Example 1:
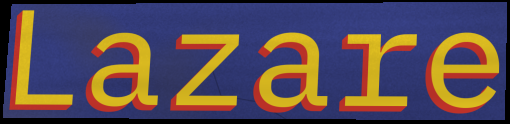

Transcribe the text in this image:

Lazare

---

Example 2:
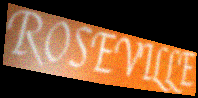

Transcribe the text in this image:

ROSEVILLE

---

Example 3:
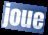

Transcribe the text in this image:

joue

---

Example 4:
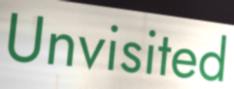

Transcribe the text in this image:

Unvisited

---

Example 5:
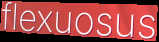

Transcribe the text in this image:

flexuosus